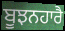
ਬੂਝਨਹਾਰੈ